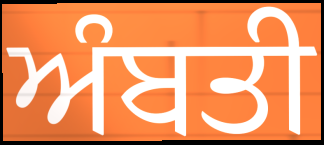
ਅੰਬਤੀ